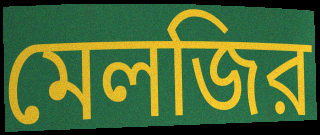
মেলজির